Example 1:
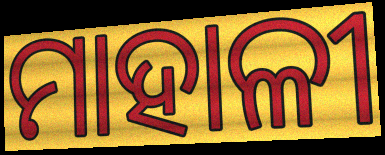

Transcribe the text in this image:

ମାହାଳୀ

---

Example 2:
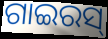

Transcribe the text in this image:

ଗାଇରସ୍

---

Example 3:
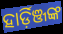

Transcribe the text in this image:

ହାର୍ଡ଼ିଞ୍ଜଙ୍କ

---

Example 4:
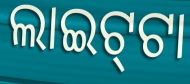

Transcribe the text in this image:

ଲାଇଟ୍‍ଟା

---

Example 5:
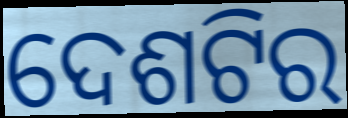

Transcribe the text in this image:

ଦେଶଟିର